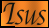
Isus